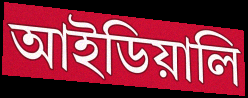
আইডিয়ালি